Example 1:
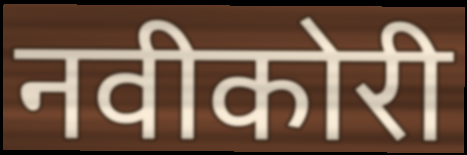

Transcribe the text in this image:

नवीकोरी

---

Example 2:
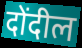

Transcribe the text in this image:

दोंदील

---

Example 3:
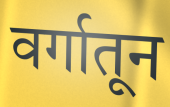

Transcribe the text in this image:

वर्गातून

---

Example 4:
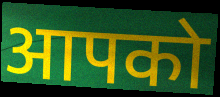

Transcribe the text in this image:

आपको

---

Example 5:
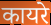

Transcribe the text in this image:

कायरे